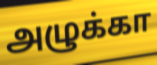
அழுக்கா